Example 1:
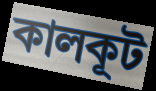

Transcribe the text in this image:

কালকূট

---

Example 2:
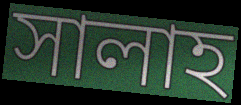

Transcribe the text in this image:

সালাহ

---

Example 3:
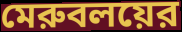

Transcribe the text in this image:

মেরুবলয়ের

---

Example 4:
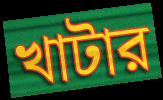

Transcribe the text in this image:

খাটার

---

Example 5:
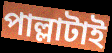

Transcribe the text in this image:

পাল্লাটাই